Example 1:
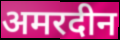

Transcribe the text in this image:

अमरदीन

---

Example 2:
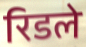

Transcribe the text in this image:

रिडले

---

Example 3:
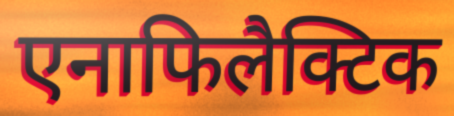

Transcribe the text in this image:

एनाफिलैक्टिक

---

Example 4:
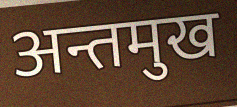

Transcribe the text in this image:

अन्तमुख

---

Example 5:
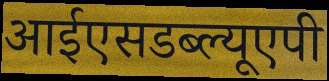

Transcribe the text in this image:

आईएसडब्ल्यूएपी